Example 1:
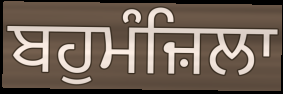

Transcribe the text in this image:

ਬਹੁਮੰਜ਼ਿਲਾ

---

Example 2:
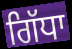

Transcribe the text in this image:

ਗਿੱਧਾ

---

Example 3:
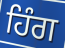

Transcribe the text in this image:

ਹਿੰਗ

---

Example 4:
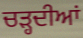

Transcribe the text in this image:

ਚੜ੍ਹਦੀਆਂ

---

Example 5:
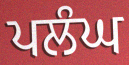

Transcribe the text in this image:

ਪਲੰਘ